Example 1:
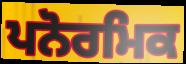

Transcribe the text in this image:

ਪਨੋਰਮਿਕ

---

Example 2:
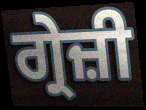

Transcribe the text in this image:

ਗ੍ਰੇਜ਼ੀ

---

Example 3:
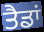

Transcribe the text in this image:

ਤੈਡਾਂ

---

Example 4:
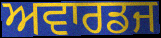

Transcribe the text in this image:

ਅਵਾਰਡਜ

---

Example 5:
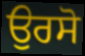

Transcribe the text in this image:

ਉਰਸੋ